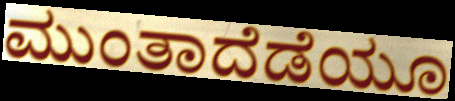
ಮುಂತಾದೆಡೆಯೂ